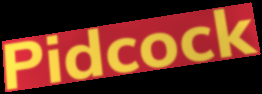
Pidcock